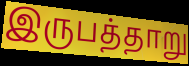
இருபத்தாறு